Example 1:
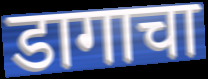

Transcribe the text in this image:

डागाचा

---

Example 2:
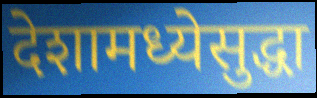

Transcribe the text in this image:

देशामध्येसुद्धा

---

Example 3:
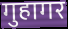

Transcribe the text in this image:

गुहागर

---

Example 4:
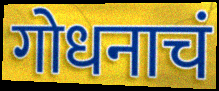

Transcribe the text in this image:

गोधनाचं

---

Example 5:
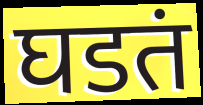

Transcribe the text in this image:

घडतं